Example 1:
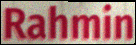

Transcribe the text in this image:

Rahmin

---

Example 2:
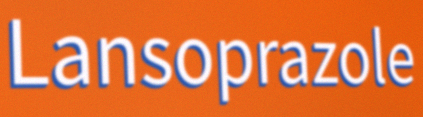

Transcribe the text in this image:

Lansoprazole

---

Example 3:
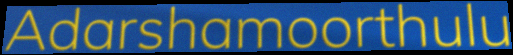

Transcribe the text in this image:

Adarshamoorthulu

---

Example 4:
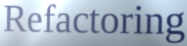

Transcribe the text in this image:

Refactoring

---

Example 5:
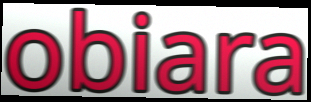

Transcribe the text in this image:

obiara